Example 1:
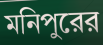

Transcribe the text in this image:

মনিপুরের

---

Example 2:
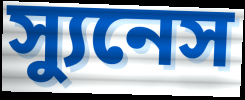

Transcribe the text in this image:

স্যুনেস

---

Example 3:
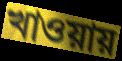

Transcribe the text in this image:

খাওয়ায়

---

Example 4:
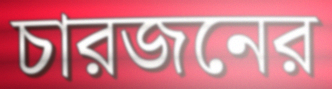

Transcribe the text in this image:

চারজনের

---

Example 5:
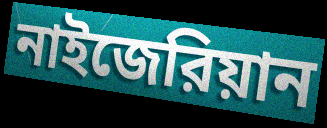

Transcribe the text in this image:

নাইজেরিয়ান